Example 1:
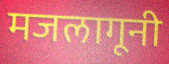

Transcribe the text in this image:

मजलागूनी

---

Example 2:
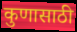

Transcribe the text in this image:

कुणासाठी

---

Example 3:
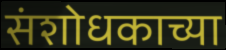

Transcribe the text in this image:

संशोधकाच्या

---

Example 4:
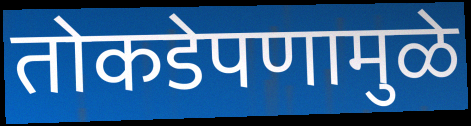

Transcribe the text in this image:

तोकडेपणामुळे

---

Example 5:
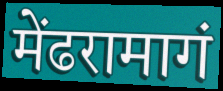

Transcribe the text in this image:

मेंढरामागं